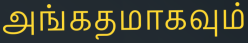
அங்கதமாகவும்